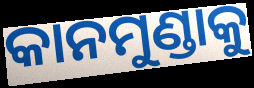
କାନମୁଣ୍ଡାକୁ